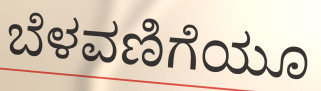
ಬೆಳವಣಿಗೆಯೂ